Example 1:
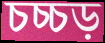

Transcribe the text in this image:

চচ্চড়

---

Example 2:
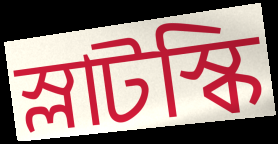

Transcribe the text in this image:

স্লাটস্কি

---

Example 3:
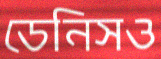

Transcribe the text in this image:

ডেনিসও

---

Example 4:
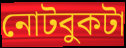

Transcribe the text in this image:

নোটবুকটা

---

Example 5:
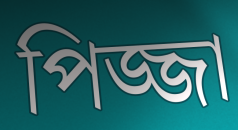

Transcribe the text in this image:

পিজ্জা